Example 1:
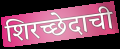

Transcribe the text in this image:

शिरच्छेदाची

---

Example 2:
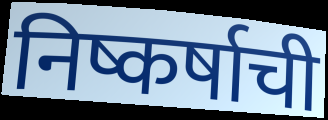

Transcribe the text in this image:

निष्कर्षाची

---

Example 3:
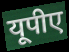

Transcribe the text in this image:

यूपीए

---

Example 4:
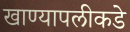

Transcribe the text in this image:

खाण्यापलीकडे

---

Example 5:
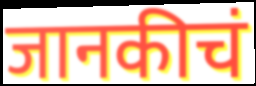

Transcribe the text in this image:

जानकीचं